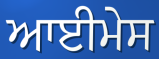
ਆਈਮੇਸ